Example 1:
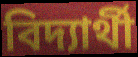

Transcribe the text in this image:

বিদ্যার্থী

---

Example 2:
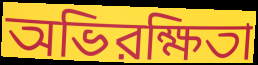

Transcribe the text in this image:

অভিরক্ষিতা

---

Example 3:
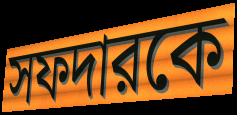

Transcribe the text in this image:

সফদারকে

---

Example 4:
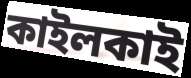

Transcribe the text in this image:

কাইলকাই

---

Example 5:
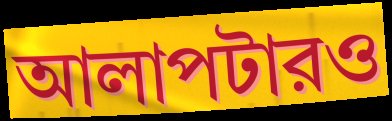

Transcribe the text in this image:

আলাপটারও